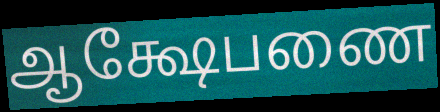
ஆக்ஷேபணை